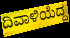
ದಿವಾಳಿಯೆದ್ದ